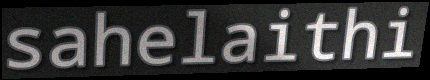
sahelaithi